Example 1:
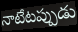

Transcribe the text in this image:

నాటేటప్పుడు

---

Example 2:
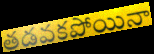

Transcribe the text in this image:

తడవకపోయినా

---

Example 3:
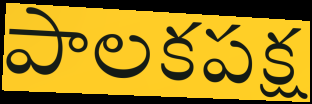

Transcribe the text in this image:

పాలకపక్ష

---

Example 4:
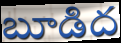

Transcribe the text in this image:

బూడిద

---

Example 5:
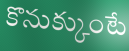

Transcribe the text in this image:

కొనుక్కుంటే